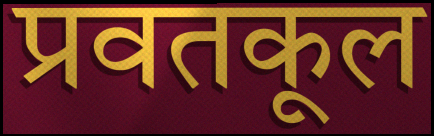
प्रवतकूल